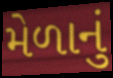
મેળાનું